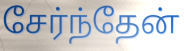
சேர்ந்தேன்